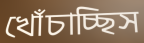
খোঁচাচ্ছিস